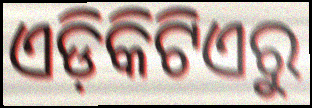
ଏଡ଼ିକିଟିଏରୁ